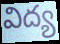
విద్య